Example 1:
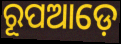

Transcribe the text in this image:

ରୂପଆଡ଼େ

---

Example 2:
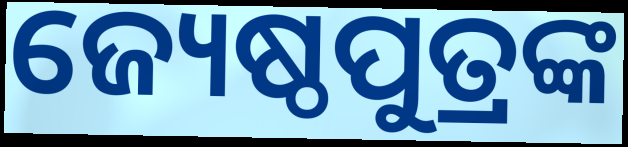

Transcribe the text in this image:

ଜ୍ୟେଷ୍ଠପୁତ୍ରଙ୍କ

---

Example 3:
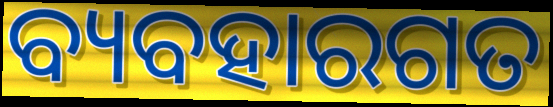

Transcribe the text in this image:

ବ୍ୟବହାରଗତ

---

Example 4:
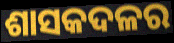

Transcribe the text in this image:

ଶାସକଦଳର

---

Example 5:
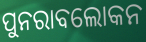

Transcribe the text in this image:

ପୁନରାବଲୋକନ